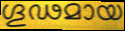
ഗൂഢമായ